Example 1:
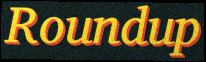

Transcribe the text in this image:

Roundup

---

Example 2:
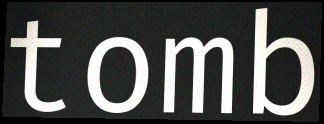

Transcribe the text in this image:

tomb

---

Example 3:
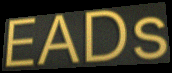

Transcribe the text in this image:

EADs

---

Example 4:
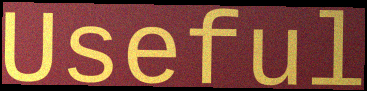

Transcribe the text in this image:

Useful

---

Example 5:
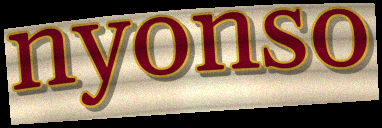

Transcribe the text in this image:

nyonso